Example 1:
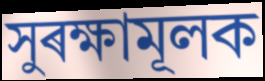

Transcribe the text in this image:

সুৰক্ষামূলক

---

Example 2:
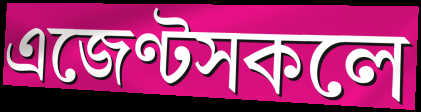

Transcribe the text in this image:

এজেণ্টসকলে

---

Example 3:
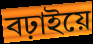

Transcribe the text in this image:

বঢ়াইয়ে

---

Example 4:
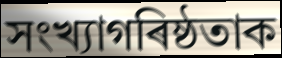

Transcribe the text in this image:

সংখ্যাগৰিষ্ঠতাক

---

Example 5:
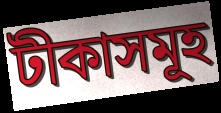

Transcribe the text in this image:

টীকাসমূহ